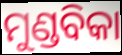
ମୁଣ୍ଡବିକା